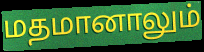
மதமானாலும்